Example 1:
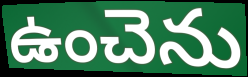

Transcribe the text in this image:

ఉంచెను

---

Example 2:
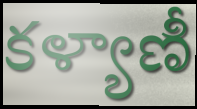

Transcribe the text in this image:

కళ్యాణీ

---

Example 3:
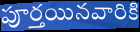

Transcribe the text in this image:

పూర్తయినవారికి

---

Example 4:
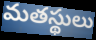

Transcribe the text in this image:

మతస్థులు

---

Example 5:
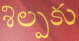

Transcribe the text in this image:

శిల్పకు